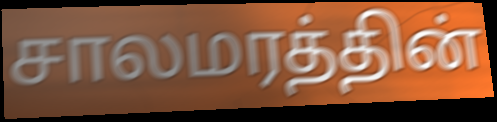
சாலமரத்தின்